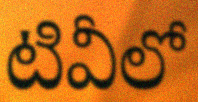
టివీలో